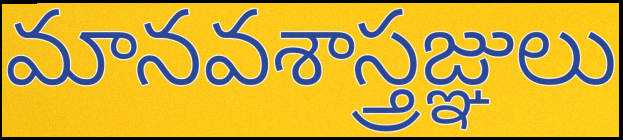
మానవశాస్త్రజ్ఞులు